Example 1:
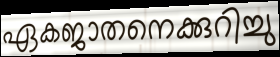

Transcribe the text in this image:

ഏകജാതനെക്കുറിച്ചു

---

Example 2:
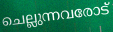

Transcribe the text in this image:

ചെല്ലുന്നവരോട്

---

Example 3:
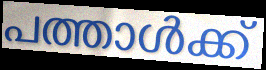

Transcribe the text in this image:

പത്താൾക്ക്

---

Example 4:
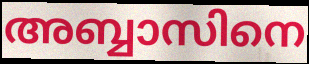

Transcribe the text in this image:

അബ്ബാസിനെ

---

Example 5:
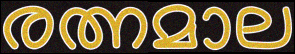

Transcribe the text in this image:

രത്നമാല